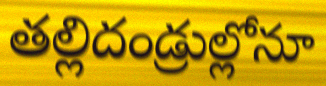
తల్లిదండ్రుల్లోనూ